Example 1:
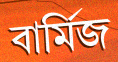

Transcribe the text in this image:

বার্মিজ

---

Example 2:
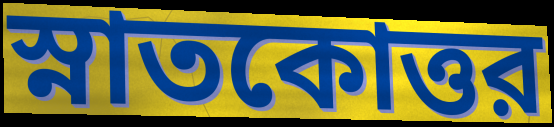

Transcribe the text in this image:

স্নাতকোত্তর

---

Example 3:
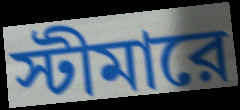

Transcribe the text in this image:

স্টীমারে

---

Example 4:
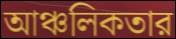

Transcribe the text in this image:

আঞ্চলিকতার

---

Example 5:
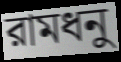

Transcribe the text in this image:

রামধনু